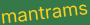
mantrams